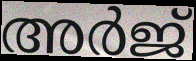
അർജ്